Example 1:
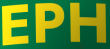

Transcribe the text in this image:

EPH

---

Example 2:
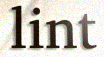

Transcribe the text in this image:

lint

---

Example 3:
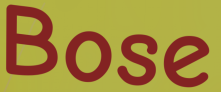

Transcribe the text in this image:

Bose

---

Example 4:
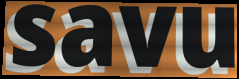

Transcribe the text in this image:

savu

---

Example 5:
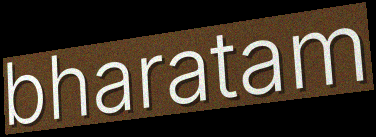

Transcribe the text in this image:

bharatam